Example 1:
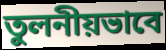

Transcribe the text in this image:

তুলনীয়ভাবে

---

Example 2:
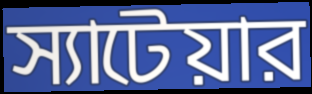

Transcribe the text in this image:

স্যাটেয়ার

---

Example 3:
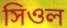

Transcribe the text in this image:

সিওল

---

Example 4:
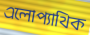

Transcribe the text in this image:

এলোপ্যাথিক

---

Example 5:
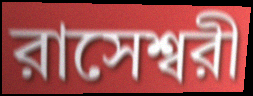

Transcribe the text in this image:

রাসেশ্বরী